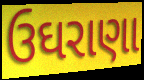
ઉઘરાણા